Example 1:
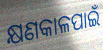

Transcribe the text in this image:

କ୍ଷଣକାଳପାଇଁ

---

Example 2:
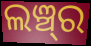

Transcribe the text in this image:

ଲଞ୍ଚ୍‍ର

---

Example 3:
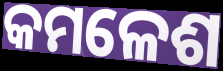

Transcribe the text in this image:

କମଳେଶ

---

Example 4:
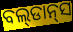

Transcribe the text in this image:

ବଲ୍‌ଡାନ୍‌ସ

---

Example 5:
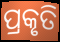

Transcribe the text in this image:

ପ୍ରକୃତି